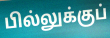
பில்லுக்குப்